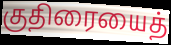
குதிரையைத்